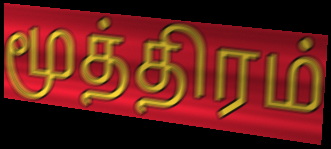
மூத்திரம்